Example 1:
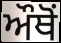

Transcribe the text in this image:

ਔਥੋਂ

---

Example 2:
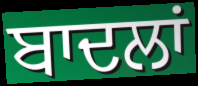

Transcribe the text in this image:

ਬਾਦਲਾਂ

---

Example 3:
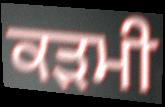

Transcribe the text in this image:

ਕੜਮੀ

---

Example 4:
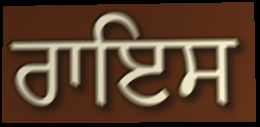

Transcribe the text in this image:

ਰਾਇਸ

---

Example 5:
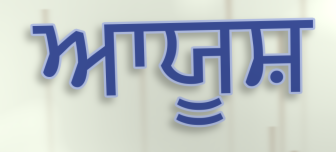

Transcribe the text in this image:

ਆਯੂਸ਼